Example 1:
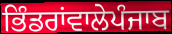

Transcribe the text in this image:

ਭਿੰਡਰਾਂਵਾਲੇਪੰਜਾਬ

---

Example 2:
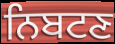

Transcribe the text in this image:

ਨਿਬਟਣ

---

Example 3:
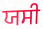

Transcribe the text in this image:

ਯਸੀ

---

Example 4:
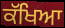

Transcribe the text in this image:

ਕੱਖਿਆ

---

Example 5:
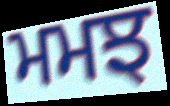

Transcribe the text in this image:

ਮਮਝ